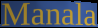
Manala